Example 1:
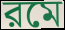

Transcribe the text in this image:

রমে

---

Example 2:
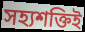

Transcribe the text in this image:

সহ্যশক্তিই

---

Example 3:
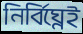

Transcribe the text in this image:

নির্বিঘ্নেই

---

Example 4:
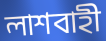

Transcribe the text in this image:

লাশবাহী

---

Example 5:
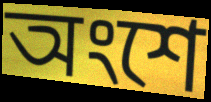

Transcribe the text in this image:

অংশে